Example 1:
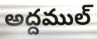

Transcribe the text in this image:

అద్దముల్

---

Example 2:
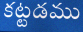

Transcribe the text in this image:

కట్టడము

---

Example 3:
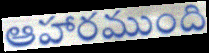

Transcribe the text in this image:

ఆహారముంది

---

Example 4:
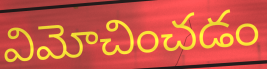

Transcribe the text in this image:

విమోచించడం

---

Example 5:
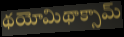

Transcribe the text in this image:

థయోమిథాక్సామ్